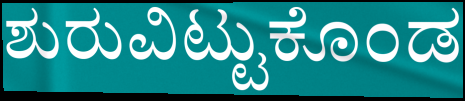
ಶುರುವಿಟ್ಟುಕೊಂಡ